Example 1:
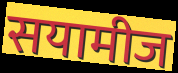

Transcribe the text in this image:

सयामीज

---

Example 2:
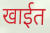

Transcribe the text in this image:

खाईत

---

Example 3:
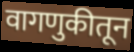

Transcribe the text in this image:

वागणुकीतून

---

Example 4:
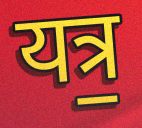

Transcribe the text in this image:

यत्र॒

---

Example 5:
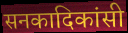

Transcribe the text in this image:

सनकादिकांसी